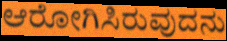
ಆರೋಗಿಸಿರುವುದನು